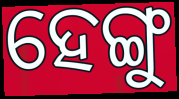
ହେଙ୍ଗୁ